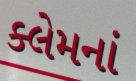
ક્લેમનાં